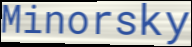
Minorsky